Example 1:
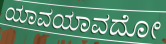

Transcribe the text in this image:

ಯಾವಯಾವದೋ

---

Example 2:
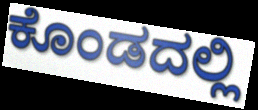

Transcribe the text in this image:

ಕೊಂಡದಲ್ಲಿ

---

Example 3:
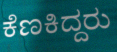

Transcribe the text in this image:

ಕೆಣಕಿದ್ದರು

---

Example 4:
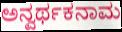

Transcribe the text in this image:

ಅನ್ವರ್ಥಕನಾಮ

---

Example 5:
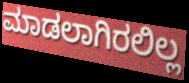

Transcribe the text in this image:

ಮಾಡಲಾಗಿರಲಿಲ್ಲ